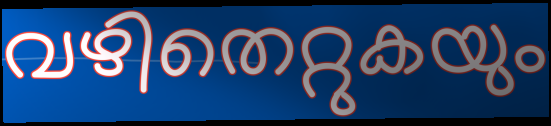
വഴിതെറ്റുകയും